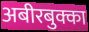
अबीरबुक्का